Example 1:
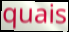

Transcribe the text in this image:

quais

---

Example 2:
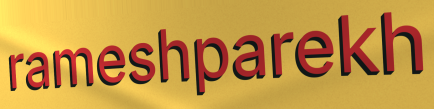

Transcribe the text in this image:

rameshparekh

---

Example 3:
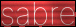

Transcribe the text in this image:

sabre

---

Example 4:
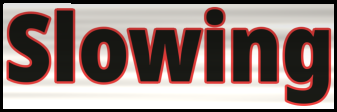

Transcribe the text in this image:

Slowing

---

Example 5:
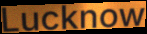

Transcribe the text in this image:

Lucknow